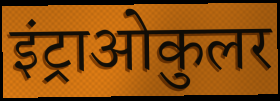
इंट्राओकुलर